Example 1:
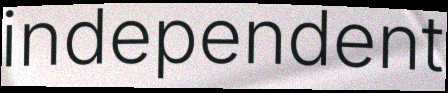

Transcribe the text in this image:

independent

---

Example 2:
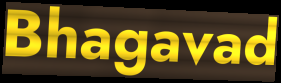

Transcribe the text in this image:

Bhagavad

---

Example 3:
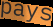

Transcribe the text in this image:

pays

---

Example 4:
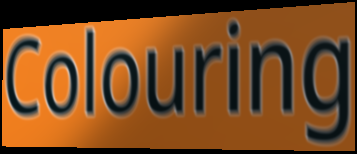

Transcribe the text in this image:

Colouring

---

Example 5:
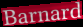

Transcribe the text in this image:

Barnard